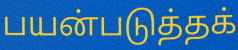
பயன்படுத்தக்